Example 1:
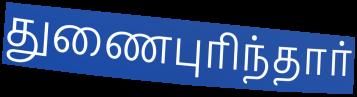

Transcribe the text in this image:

துணைபுரிந்தார்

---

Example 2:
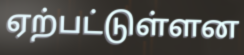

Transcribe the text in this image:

ஏற்பட்டுள்ளன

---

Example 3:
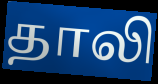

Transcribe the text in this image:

தாலி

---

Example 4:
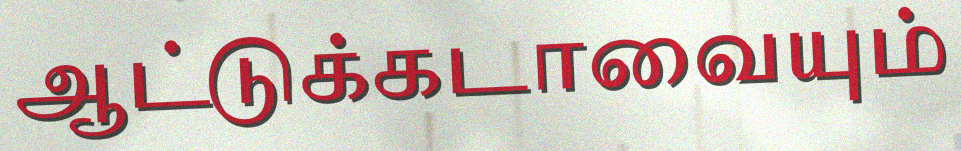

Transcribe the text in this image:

ஆட்டுக்கடாவையும்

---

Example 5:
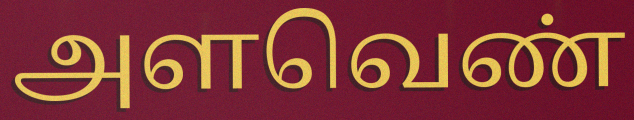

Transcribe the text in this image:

அளவெண்